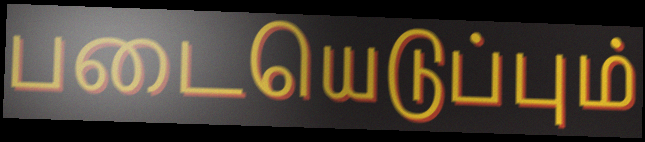
படையெடுப்பும்